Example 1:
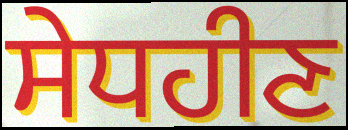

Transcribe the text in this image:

ਸੇਧਹੀਣ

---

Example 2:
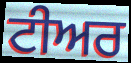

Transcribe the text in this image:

ਟੀਅਰ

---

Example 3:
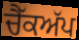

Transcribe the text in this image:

ਚੈੱਕਅੱਪ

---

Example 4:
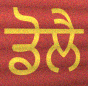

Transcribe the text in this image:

ਡੋਲੈ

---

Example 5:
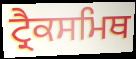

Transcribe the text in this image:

ਟ੍ਰੈਕਸਮਿਥ